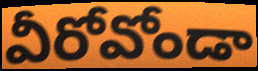
వీరోవోండా